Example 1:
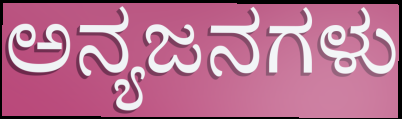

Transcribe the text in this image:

ಅನ್ಯಜನಗಳು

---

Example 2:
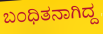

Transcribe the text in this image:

ಬಂಧಿತನಾಗಿದ್ದ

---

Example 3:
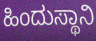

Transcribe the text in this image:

ಹಿಂದುಸ್ಥಾನಿ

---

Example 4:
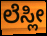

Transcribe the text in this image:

ಲೆಸ್ಲೀ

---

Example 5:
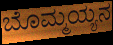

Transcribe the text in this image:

ಬೊಮ್ಮಯ್ಯನ